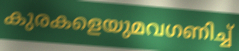
കുരകളെയുമവഗണിച്ച്